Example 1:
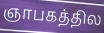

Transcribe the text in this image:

ஞாபகத்தில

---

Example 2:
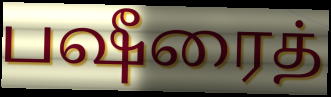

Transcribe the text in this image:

பஷீரைத்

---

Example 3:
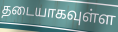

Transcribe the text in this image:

தடையாகவுள்ள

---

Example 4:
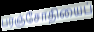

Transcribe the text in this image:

பரஞ்சோதியைப்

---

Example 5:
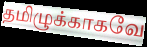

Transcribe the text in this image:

தமிழுக்காகவே